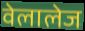
वेलालेज